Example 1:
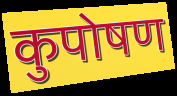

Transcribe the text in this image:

कुपोषण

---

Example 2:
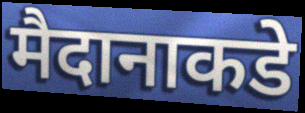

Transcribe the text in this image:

मैदानाकडे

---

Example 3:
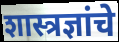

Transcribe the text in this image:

शास्त्रज्ञांचे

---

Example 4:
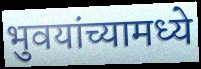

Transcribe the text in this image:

भुवयांच्यामध्ये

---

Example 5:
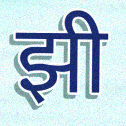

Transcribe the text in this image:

झी